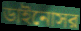
ডাইনোসর